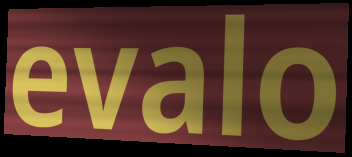
evalo